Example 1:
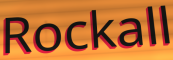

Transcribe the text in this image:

Rockall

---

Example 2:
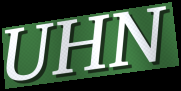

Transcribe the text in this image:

UHN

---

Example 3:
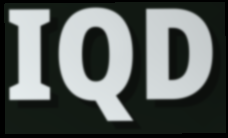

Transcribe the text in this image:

IQD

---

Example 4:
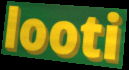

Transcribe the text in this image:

looti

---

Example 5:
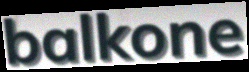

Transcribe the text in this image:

balkone